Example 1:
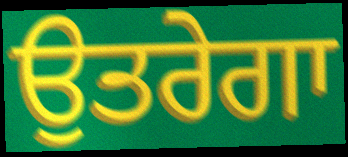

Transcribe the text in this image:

ਉਤਰੇਗਾ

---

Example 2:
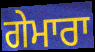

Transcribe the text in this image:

ਗੇਮਾਰਾ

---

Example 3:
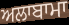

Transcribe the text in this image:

ਅਲਾਬਾਮਾ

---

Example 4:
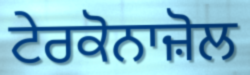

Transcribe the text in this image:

ਟੇਰਕੋਨਾਜ਼ੋਲ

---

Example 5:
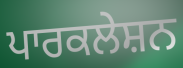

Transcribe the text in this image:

ਪਾਰਕਲੇਸ਼ਨ